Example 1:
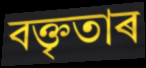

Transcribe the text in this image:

বক্তৃতাৰ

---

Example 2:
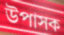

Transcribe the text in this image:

উপাসক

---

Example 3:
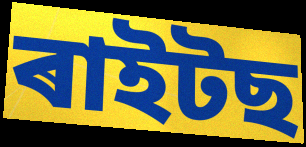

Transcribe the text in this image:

ৰাইটছ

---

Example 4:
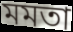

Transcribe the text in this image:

মমতা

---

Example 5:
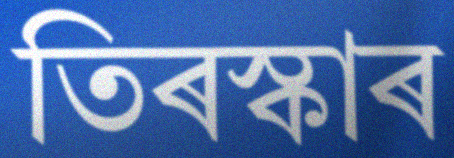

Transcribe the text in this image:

তিৰস্কাৰ